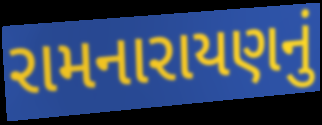
રામનારાયણનું